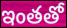
ఇంతతో